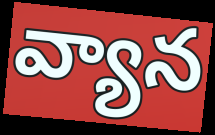
వ్యాన